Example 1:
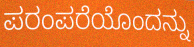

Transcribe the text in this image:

ಪರಂಪರೆಯೊಂದನ್ನು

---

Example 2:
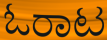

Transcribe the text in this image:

ಓರಾಟ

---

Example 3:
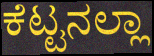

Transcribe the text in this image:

ಕೆಟ್ಟನಲ್ಲಾ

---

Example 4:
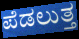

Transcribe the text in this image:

ಪೆಡಲುತ್ತ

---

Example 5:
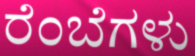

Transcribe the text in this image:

ರೆಂಬೆಗಳು